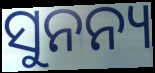
ସୁନନ୍ୟ